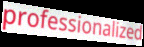
professionalized